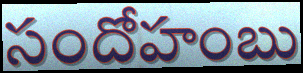
సందోహంబు